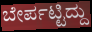
ಬೇರ್ಪಟ್ಟಿದ್ದು